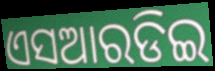
ଏସଆରଡିଇ